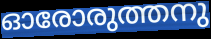
ഓരോരുത്തനു